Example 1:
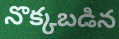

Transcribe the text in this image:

నొక్కబడిన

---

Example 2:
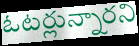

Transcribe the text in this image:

ఓటర్లున్నారని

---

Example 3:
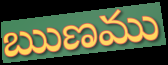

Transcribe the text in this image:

ఋణము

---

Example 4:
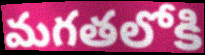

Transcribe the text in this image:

మగతలోకి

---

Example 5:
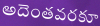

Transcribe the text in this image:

అదెంతవరకూ